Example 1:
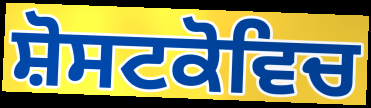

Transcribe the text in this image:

ਸ਼ੋਸਟਕੋਵਿਚ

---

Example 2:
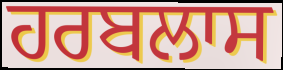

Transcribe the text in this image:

ਹਰਬਲਾਸ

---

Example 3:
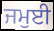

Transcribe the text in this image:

ਜਮੁਈ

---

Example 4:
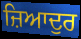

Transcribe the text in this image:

ਜ਼ਿਆਦੁਰ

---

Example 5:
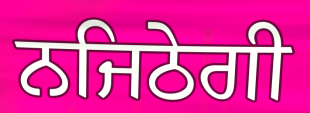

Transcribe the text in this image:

ਨਜਿਠੇਗੀ